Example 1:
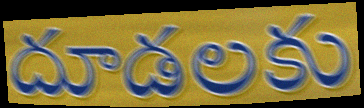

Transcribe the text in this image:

దూడలకు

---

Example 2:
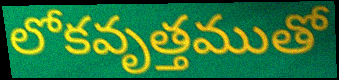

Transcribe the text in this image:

లోకవృత్తముతో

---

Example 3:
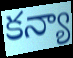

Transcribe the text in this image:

కన్యా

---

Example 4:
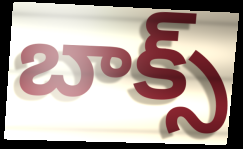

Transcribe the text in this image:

బాక్స్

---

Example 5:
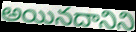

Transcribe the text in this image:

అయినదానిని